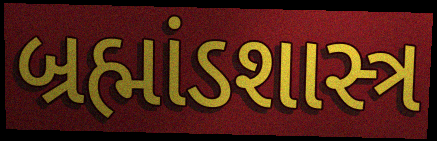
બ્રહ્માંડશાસ્ત્ર